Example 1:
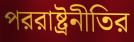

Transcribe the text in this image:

পররাষ্ট্রনীতির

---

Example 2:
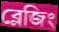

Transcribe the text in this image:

ব্লেজিং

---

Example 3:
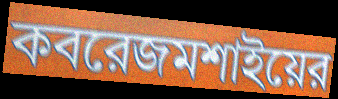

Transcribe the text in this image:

কবরেজমশাইয়ের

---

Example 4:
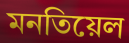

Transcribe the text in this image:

মনতিয়েল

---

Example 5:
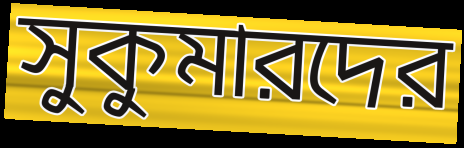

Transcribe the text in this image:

সুকুমারদের